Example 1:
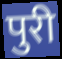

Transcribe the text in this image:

पुरी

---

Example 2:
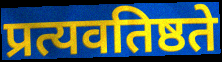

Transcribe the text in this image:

प्रत्यवतिष्ठते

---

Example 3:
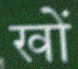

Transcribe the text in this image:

खों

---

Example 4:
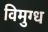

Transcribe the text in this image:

विमुग्ध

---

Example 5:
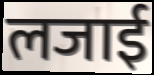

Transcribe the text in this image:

लजाई